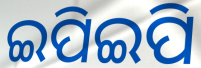
ଇପିଇପି